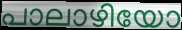
പാലാഴിയോ